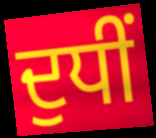
ਦੁਧੀਂ